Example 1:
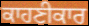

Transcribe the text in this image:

ਕਾਹਣੀਕਾਰ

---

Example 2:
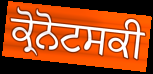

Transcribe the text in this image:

ਕ੍ਰੋਨੋਟਸਕੀ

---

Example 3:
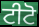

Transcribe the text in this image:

ਟੀਟੋ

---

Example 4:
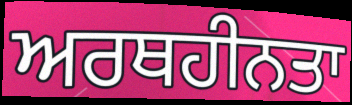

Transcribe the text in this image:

ਅਰਥਹੀਨਤਾ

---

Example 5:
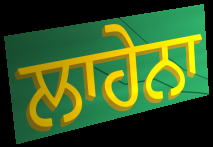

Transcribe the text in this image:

ਲਾਹੇਨਾ